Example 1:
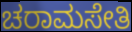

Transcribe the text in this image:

ಚರಾಮಸೇತಿ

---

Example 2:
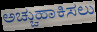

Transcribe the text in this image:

ಅಚ್ಚುಹಾಕಿಸಲು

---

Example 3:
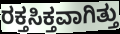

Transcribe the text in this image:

ರಕ್ತಸಿಕ್ತವಾಗಿತ್ತು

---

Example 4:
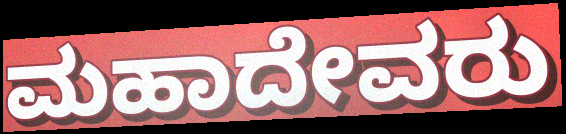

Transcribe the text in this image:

ಮಹಾದೇವರು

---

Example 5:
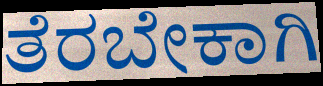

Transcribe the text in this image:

ತೆರಬೇಕಾಗಿ